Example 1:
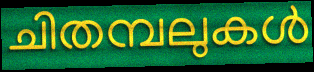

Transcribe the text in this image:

ചിതമ്പലുകൾ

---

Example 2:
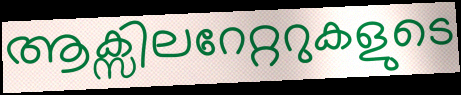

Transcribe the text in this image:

ആക്സിലറേറ്ററുകളുടെ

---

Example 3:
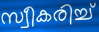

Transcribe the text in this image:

സ്വീകരിച്ച്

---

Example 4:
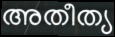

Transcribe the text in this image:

അതീത്യ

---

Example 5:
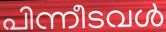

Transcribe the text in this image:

പിന്നീടവൾ